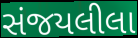
સંજયલીલા